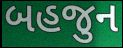
બહજુન